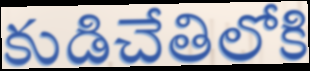
కుడిచేతిలోకి